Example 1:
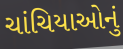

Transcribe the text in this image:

ચાંચિયાઓનું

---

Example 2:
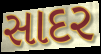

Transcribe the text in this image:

સાદર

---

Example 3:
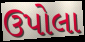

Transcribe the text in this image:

ઉપોલા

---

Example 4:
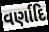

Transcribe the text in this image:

વર્ણાદિ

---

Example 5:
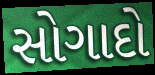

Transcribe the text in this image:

સોગાદો